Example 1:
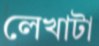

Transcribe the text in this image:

লেখাটা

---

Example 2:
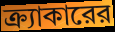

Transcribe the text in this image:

ক্র্যাকারের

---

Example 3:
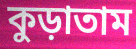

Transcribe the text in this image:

কুড়াতাম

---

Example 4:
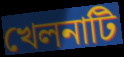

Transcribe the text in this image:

খেলনাটি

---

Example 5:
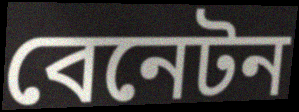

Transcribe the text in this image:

বেনেটন